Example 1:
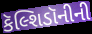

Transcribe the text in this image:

કૅલ્શિડૉનીની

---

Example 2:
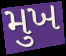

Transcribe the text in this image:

મુખ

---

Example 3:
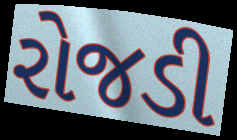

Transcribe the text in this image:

રોજડી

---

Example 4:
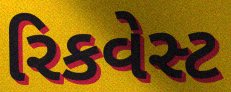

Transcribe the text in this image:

રિકવેસ્ટ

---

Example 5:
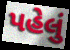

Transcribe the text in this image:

પહેલું